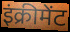
इंक्रीमेंट